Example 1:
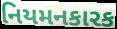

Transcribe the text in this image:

નિયમનકારક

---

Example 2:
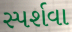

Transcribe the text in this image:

સ્પર્શવા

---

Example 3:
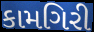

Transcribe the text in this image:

કામગિરી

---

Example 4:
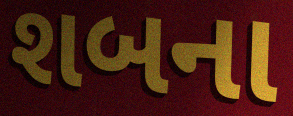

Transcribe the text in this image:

શબના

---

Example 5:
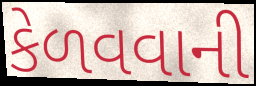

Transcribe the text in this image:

કેળવવાની